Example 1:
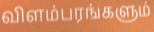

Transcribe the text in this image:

விளம்பரங்களும்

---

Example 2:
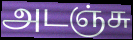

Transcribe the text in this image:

அடஞ்சு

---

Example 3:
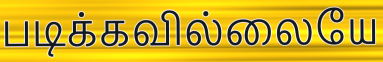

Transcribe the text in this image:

படிக்கவில்லையே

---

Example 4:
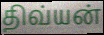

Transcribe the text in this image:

திவ்யன்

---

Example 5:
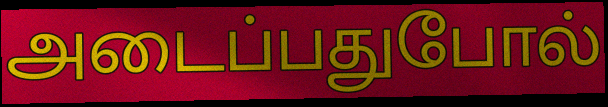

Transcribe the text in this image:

அடைப்பதுபோல்